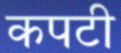
कपटी